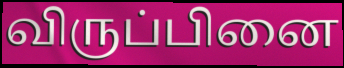
விருப்பினை